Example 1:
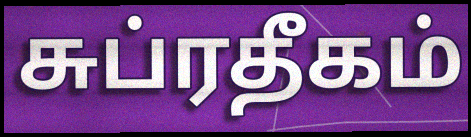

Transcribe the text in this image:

சுப்ரதீகம்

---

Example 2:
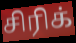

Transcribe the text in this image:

சிரிக்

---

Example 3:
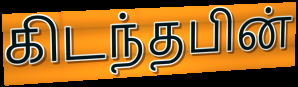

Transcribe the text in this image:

கிடந்தபின்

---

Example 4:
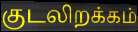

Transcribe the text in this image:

குடலிறக்கம்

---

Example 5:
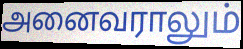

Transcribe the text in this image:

அனைவராலும்